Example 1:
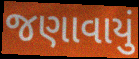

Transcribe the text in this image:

જણાવાયું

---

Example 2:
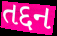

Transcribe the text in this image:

તદ્દન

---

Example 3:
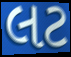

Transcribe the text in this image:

લટ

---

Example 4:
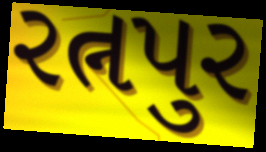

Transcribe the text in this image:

રત્નપુર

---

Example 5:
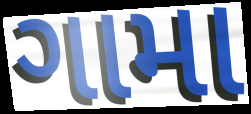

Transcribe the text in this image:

ગામા